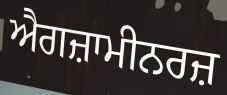
ਐਗਜ਼ਾਮੀਨਰਜ਼